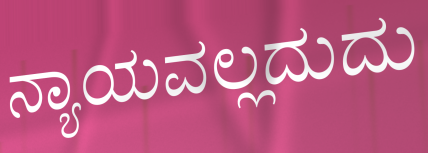
ನ್ಯಾಯವಲ್ಲದುದು